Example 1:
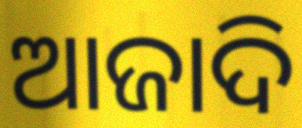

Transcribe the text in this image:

ଆଜାଦି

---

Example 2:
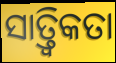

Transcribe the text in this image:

ସାତ୍ତ୍ଵିକତା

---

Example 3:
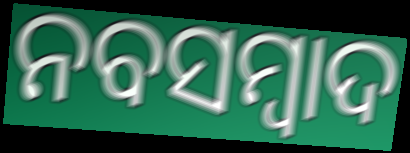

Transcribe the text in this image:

ନବସମ୍ବାଦ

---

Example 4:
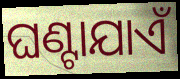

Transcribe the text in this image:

ଘଣ୍ଟାଯାଏଁ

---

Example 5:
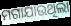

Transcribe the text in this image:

ମଗାଯାଉଥିଲା